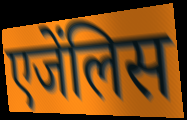
एजेंलिस